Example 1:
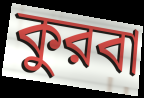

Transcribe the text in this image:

কুরবা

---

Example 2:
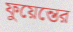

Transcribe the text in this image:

ফুয়েন্তের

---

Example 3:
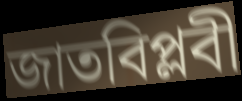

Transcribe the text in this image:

জাতবিপ্লবী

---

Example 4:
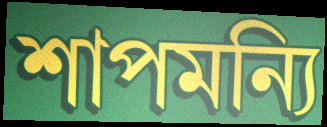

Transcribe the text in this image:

শাপমন্যি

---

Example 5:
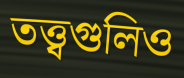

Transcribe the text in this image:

তত্ত্বগুলিও